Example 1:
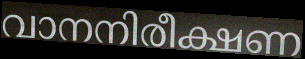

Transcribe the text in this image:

വാനനിരീക്ഷണ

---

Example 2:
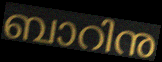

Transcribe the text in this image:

ബാറിനു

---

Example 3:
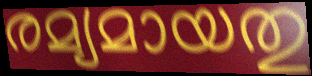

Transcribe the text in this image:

രമ്യമായതു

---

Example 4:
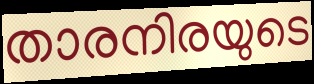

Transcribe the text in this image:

താരനിരയുടെ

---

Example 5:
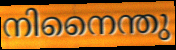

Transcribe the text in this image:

നിനൈന്തു